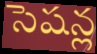
సెషన్ల